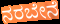
ನರಬೇನೆ